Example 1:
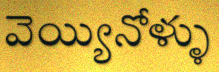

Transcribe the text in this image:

వెయ్యినోళ్ళు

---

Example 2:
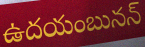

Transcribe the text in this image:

ఉదయంబునన్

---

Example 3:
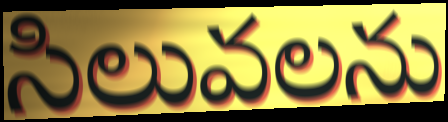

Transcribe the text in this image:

సిలువలను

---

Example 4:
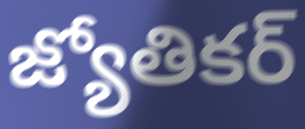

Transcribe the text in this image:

జ్యోతికర్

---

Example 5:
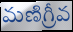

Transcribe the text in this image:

మణిగ్రీవ